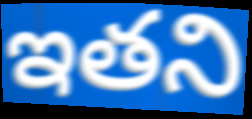
ఇతని